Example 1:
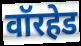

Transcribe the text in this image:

वॉरहेड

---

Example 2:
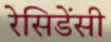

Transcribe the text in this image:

रेसिडेंसी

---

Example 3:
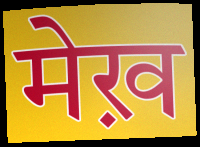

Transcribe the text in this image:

मेख़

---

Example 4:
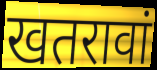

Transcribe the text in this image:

खतरावां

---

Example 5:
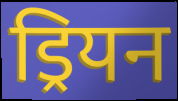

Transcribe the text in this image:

ड्रियन